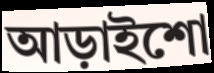
আড়াইশো